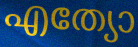
എത്യോ